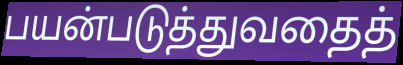
பயன்படுத்துவதைத்